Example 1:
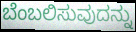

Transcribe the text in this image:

ಬೆಂಬಲಿಸುವುದನ್ನು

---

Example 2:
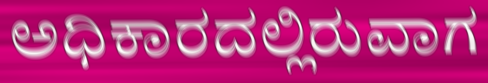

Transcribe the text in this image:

ಅಧಿಕಾರದಲ್ಲಿರುವಾಗ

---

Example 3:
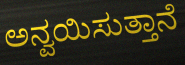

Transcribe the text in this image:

ಅನ್ವಯಿಸುತ್ತಾನೆ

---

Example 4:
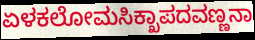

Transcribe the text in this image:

ಏಳಕಲೋಮಸಿಕ್ಖಾಪದವಣ್ಣನಾ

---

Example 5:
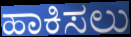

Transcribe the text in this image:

ಹಾಕಿಸಲು